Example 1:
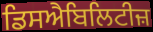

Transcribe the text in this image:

ਡਿਸਐਬਿਲਿਟੀਜ਼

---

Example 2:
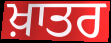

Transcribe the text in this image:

ਖ਼ਾਤਰ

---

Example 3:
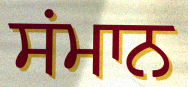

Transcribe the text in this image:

ਸਂਮਾਨ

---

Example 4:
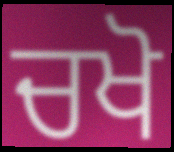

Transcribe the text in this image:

ਚਖੋ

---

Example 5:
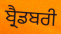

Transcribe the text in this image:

ਬ੍ਰੈਡਬਰੀ